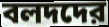
বলদদের